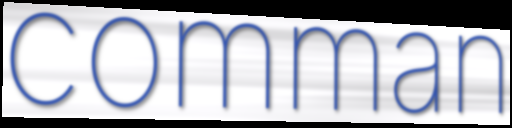
comman